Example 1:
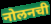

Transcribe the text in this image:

नोलनची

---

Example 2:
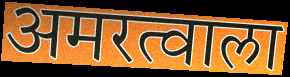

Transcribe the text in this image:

अमरत्वाला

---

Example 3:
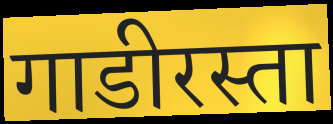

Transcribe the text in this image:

गाडीरस्ता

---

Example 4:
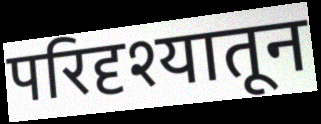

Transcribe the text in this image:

परिदृश्यातून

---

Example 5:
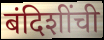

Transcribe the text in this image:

बंदिशींची